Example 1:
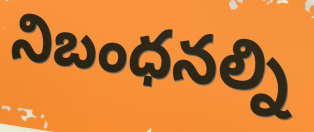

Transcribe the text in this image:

నిబంధనల్ని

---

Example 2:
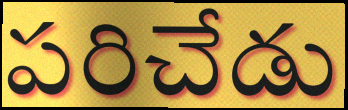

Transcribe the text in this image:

పరిచేడు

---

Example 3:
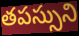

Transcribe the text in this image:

తపస్సుని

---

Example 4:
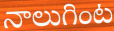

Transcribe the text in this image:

నాలుగింట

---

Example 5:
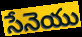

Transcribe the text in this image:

సేనెయు